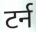
टर्न